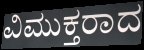
ವಿಮುಕ್ತರಾದ